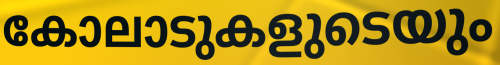
കോലാടുകളുടെയും